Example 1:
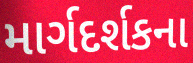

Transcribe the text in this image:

માર્ગદર્શકના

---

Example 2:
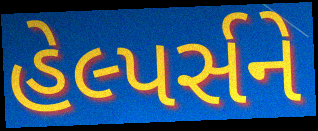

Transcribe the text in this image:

હેલ્પર્સને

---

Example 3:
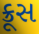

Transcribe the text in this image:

ક્રૂસ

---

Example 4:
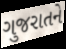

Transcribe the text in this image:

ગુજરાતને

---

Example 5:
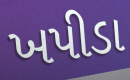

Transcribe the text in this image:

ખપીડા